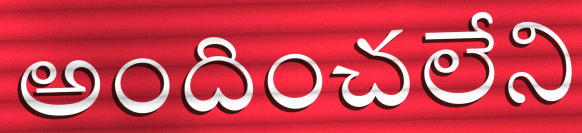
అందించలేని